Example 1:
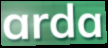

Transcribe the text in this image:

arda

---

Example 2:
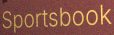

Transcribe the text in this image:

Sportsbook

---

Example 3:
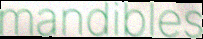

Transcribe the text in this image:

mandibles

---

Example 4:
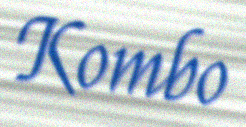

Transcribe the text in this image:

Kombo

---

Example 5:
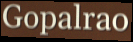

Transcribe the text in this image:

Gopalrao